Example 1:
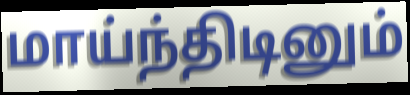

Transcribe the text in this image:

மாய்ந்திடினும்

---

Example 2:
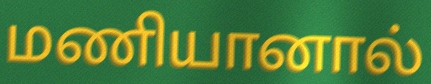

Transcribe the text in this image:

மணியானால்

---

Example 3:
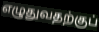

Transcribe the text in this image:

எழுதுவதற்குப்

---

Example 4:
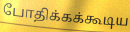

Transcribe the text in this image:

போதிக்கக்கூடிய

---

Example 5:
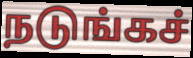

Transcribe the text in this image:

நடுங்கச்